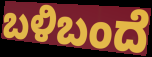
ಬಳಿಬಂದೆ